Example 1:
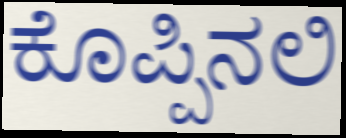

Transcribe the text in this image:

ಕೊಪ್ಪಿನಲಿ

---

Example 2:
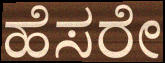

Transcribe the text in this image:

ಹೆಸರೇ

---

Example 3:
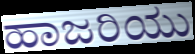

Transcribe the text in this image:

ಹಾಜರಿಯು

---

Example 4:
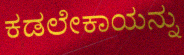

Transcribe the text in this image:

ಕಡಲೇಕಾಯನ್ನು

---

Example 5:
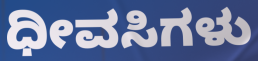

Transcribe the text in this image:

ಧೀವಸಿಗಳು